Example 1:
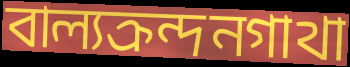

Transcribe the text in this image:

বাল্যক্রন্দনগাথা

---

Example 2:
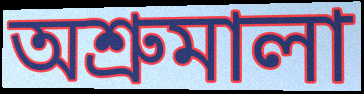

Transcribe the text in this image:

অশ্রুমালা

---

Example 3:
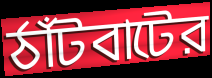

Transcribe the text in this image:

ঠাঁটবাটের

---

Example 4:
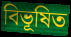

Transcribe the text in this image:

বিভূষিত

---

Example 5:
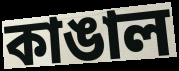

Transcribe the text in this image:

কাঙাল